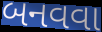
બનવવા